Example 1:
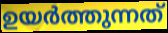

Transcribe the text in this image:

ഉയർത്തുന്നത്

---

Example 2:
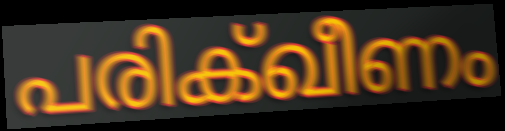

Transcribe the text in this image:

പരിക്ഖീണം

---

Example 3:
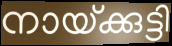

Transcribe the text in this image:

നായ്‌ക്കുട്ടി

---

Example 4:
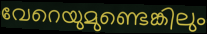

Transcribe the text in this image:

വേറെയുമുണ്ടെങ്കിലും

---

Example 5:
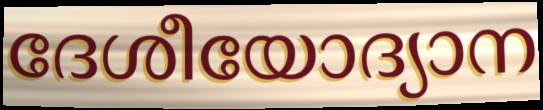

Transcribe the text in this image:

ദേശീയോദ്യാന